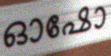
ഓഷോ